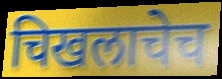
चिखलाचेच